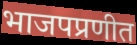
भाजपप्रणीत